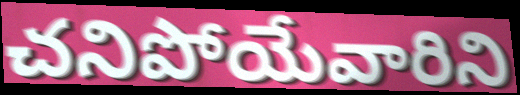
చనిపోయేవారిని